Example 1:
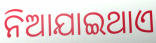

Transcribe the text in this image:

ନିଆଯାଇଥାଏ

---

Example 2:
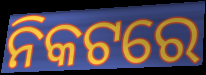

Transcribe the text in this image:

ନିକଟରେ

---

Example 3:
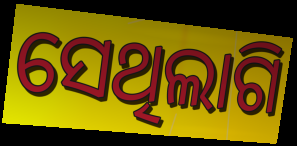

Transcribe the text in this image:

ସେଥିଲାଗି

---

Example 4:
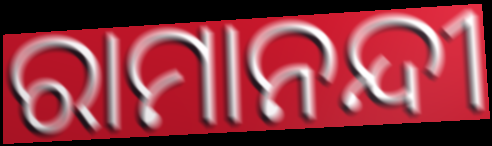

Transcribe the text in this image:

ରାମାନନ୍ଦୀ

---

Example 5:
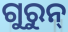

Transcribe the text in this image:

ଗୁରୁନ୍